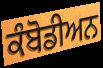
ਕੰਬੋਡੀਅਨ